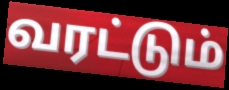
வரட்டும்